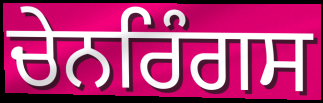
ਚੇਨਰਿੰਗਸ